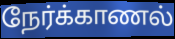
நேர்க்காணல்